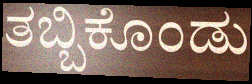
ತಬ್ಬಿಕೊಂಡು